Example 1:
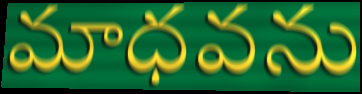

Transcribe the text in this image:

మాధవను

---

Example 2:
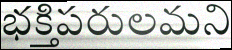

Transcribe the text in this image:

భక్తిపరులమని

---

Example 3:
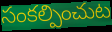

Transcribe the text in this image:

సంకల్పించుట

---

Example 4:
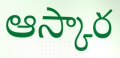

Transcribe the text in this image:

ఆస్కార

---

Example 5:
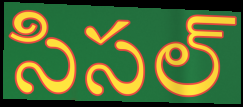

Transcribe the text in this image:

సిసల్